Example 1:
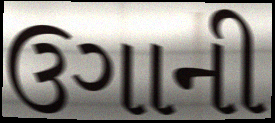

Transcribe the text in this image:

ઉગાની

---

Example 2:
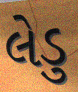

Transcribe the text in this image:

લેડુ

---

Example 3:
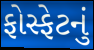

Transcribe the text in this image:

ફોસ્ફેટનું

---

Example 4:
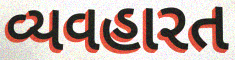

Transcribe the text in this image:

વ્યવહારત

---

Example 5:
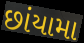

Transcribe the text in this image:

છાંયામા